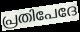
പ്രതിപേദേ